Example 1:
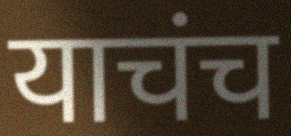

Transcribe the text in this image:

याचंच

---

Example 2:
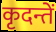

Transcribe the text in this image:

कृदन्तें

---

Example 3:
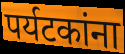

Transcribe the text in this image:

पर्यटकांना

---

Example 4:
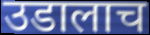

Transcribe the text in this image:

उडालाच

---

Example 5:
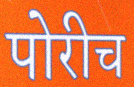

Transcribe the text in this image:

पोरीच